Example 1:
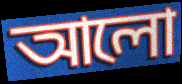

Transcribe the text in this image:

আলো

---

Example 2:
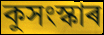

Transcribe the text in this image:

কুসংস্কাৰ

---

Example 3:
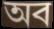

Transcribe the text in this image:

অব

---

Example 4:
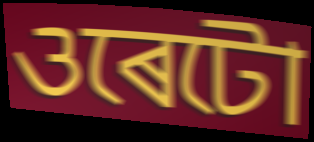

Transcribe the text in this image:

ওৰেটো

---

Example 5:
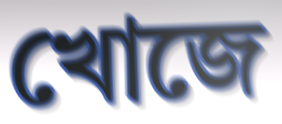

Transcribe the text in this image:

খোজে